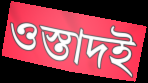
ওস্তাদই